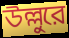
উল্লুরে